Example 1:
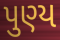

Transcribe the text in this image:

પુણ્ય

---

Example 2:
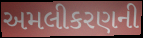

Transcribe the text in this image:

અમલીકરણની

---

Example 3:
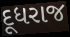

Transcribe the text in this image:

દૂધરાજ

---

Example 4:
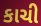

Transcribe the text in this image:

કાચી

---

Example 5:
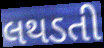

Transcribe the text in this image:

લથડતી